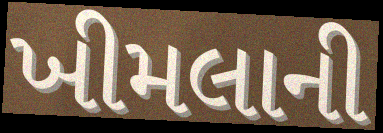
ખીમલાની